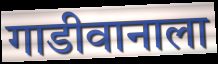
गाडीवानाला